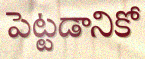
పెట్టడానికో